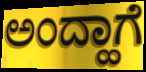
ಅಂದ್ಹಾಗೆ